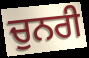
ਚੁਨਰੀ